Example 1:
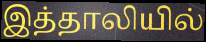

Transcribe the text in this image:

இத்தாலியில்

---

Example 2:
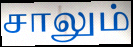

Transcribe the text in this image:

சாலும்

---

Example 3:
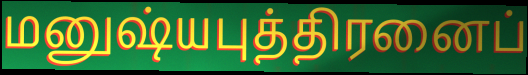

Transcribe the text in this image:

மனுஷ்யபுத்திரனைப்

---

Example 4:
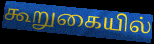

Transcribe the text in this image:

கூறுகையில்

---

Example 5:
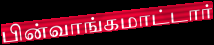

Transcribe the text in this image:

பின்வாங்கமாட்டார்